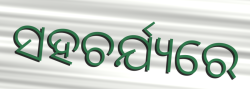
ସହଚର୍ଯ୍ୟରେ